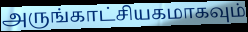
அருங்காட்சியகமாகவும்